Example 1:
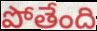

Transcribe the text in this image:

పోతేంది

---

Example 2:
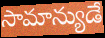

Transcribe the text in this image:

సామాన్యుడే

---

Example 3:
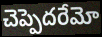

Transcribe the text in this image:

చెప్పెదరేమో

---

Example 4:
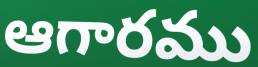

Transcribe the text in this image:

ఆగారము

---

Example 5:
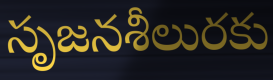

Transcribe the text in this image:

సృజనశీలురకు